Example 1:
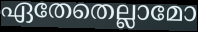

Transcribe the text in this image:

ഏതേതെല്ലാമോ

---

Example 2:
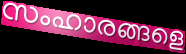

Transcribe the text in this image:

സംഹാരങ്ങളെ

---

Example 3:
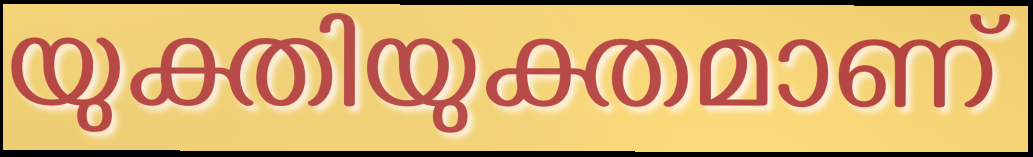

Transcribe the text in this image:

യുക്തിയുക്തമാണ്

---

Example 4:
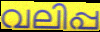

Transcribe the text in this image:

വലിപ്പ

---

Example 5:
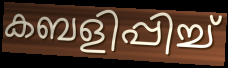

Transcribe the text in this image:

കബളിപ്പിച്ച്